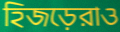
হিজড়েরাও